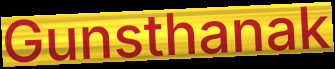
Gunsthanak